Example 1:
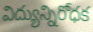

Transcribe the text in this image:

విద్యున్నిరోధక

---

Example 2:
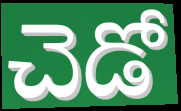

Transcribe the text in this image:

చెడో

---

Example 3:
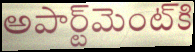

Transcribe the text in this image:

అపార్ట్‌మెంట్‌కి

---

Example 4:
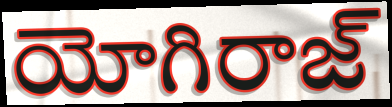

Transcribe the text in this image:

యోగిరాజ్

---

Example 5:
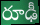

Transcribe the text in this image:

రూఢీ